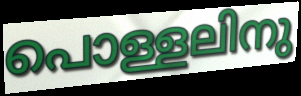
പൊള്ളലിനു